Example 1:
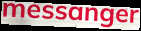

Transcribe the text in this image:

messanger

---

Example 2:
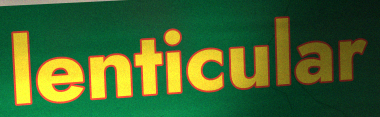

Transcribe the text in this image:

lenticular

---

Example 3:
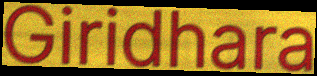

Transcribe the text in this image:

Giridhara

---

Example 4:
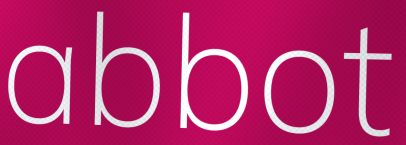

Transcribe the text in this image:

abbot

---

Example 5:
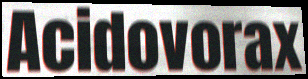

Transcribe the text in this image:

Acidovorax